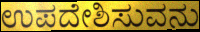
ಉಪದೇಶಿಸುವನು